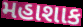
મહાશાક